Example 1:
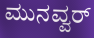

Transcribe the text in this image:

ಮುನವ್ವರ್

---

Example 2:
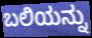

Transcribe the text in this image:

ಬಲಿಯನ್ನು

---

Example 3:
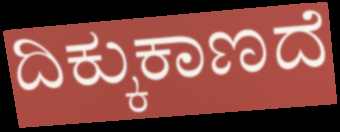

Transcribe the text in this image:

ದಿಕ್ಕುಕಾಣದೆ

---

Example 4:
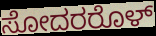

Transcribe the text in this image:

ಸೋದರರೊಳ್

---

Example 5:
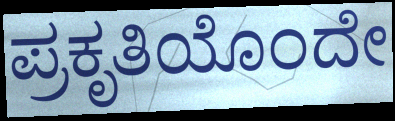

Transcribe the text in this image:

ಪ್ರಕೃತಿಯೊಂದೇ